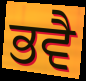
ਭਵੈ